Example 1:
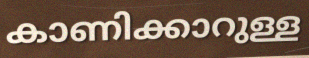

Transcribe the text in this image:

കാണിക്കാറുള്ള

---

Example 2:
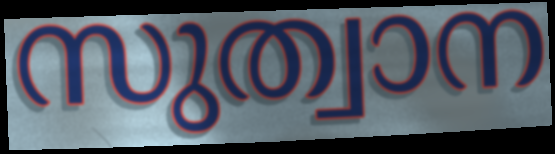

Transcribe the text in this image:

സുത്വാന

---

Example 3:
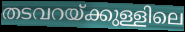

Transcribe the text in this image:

തടവറയ്ക്കുള്ളിലെ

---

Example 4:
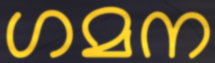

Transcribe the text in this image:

ഗമന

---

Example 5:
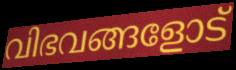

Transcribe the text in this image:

വിഭവങ്ങളോട്